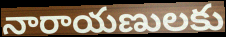
నారాయణులకు